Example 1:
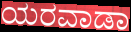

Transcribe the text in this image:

ಯರವಾಡಾ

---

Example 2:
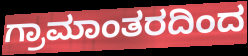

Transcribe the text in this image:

ಗ್ರಾಮಾಂತರದಿಂದ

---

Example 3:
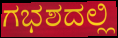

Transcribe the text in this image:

ಗಭಶದಲ್ಲಿ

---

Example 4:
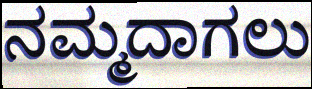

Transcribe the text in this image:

ನಮ್ಮದಾಗಲು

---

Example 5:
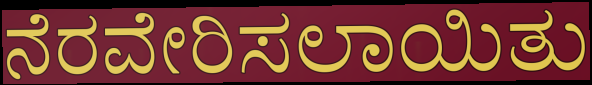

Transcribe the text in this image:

ನೆರವೇರಿಸಲಾಯಿತು